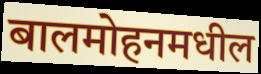
बालमोहनमधील